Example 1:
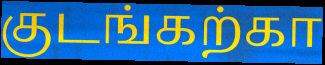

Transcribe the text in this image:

குடங்கற்கா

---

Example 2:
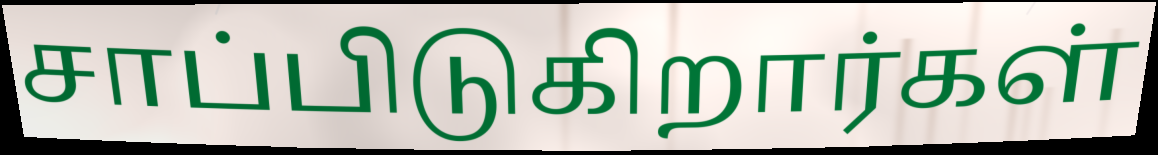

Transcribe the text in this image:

சாப்பிடுகிறார்கள்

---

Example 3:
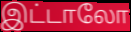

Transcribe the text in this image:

இட்டாலோ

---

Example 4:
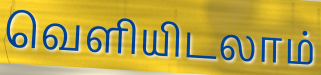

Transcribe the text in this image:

வெளியிடலாம்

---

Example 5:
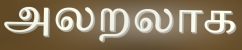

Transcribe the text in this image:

அலறலாக